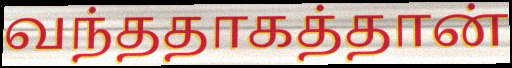
வந்ததாகத்தான்